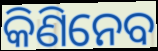
କିଣିନେବ